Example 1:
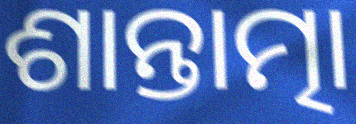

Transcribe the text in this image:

ଶାନ୍ତାତ୍ମା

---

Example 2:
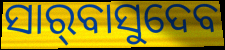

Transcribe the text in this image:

ସାର୍‌ବାସୁଦେବ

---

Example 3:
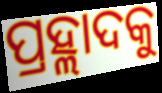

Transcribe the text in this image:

ପ୍ରହ୍ଲାଦକୁ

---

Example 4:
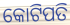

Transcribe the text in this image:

କୋଟିପତି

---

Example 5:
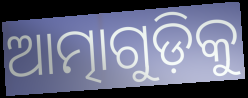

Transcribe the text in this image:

ଆତ୍ମାଗୁଡ଼ିକୁ